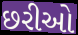
છરીઓ